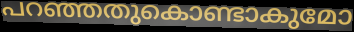
പറഞ്ഞതുകൊണ്ടാകുമോ